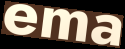
ema